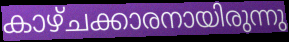
കാഴ്ചക്കാരനായിരുന്നു